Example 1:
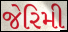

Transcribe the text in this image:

જેરિમી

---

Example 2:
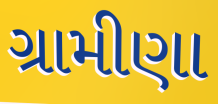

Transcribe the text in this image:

ગ્રામીણા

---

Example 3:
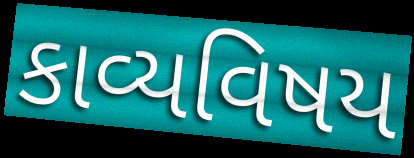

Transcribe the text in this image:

કાવ્યવિષય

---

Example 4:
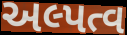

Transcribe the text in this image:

અલ્પત્વ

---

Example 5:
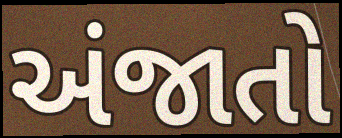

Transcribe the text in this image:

અંજાતો